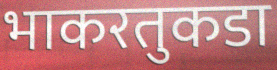
भाकरतुकडा